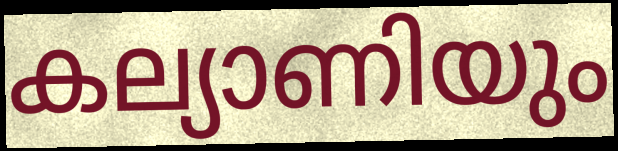
കല്യാണിയും